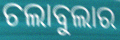
ଚଲାବୁଲାର